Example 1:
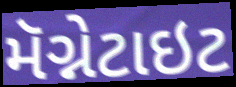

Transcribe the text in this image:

મૅગ્નેટાઇટ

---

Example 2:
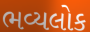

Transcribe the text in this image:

ભવ્યલોક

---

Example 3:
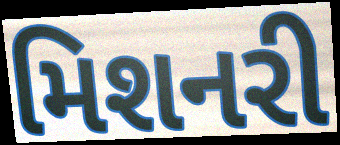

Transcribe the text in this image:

મિશનરી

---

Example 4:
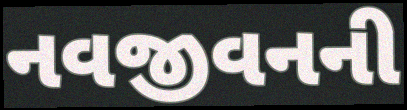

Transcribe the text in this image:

નવજીવનની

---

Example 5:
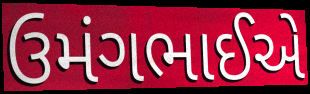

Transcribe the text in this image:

ઉમંગભાઈએ